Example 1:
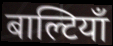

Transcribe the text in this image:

बाल्टियाँ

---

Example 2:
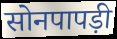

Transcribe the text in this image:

सोनपापड़ी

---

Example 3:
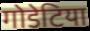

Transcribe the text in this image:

गोडेटिया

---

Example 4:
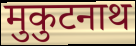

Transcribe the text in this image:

मुकुटनाथ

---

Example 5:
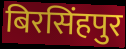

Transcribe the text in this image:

बिरसिंहपुर